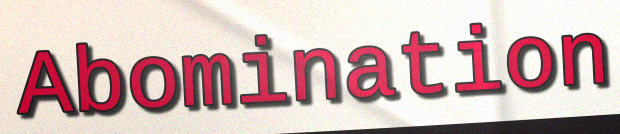
Abomination